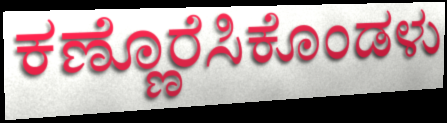
ಕಣ್ಣೊರೆಸಿಕೊಂಡಳು